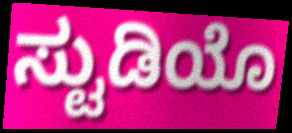
ಸ್ಟುಡಿಯೊ